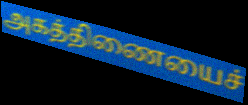
அகத்திணையைச்